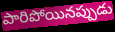
పారిపోయినప్పుడు